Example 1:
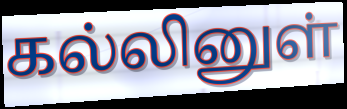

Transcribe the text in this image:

கல்லினுள்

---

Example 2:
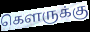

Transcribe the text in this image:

கௌருக்கு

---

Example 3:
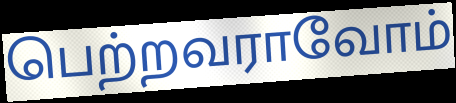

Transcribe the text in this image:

பெற்றவராவோம்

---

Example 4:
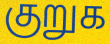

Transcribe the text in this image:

குறுக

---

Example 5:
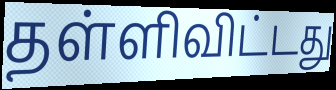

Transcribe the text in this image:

தள்ளிவிட்டது